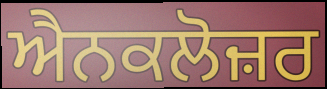
ਐਨਕਲੋਜ਼ਰ